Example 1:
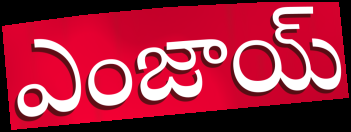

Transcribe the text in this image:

ఎంజాయ్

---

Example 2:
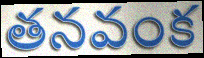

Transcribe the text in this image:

తనవంక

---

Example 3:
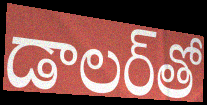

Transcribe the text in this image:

డాలర్‌తో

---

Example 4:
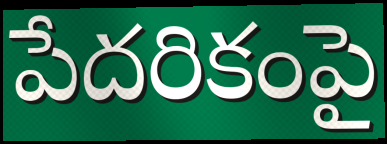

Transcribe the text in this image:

పేదరికంపై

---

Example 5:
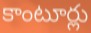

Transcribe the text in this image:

కాంటూర్లు